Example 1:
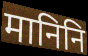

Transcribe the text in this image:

मानिनि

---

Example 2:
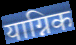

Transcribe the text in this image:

याग्निक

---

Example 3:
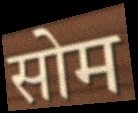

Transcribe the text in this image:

सोम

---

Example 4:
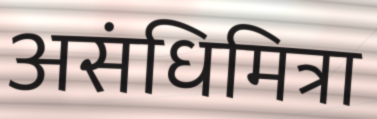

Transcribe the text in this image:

असंधिमित्रा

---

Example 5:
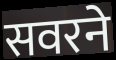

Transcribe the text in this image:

सवरने